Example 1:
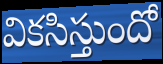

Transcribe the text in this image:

వికసిస్తుందో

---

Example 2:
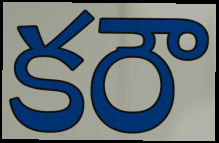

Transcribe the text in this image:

కరౌ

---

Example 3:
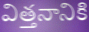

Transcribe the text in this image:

విత్తనానికి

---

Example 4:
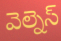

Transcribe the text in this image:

వెల్నెస్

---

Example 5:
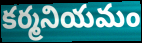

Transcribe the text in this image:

కర్మనియమం